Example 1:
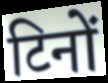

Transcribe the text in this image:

टिनों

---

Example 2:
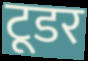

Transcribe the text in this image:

टूडर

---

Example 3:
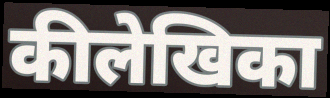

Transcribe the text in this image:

कीलेखिका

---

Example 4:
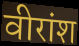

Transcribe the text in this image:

वीरांश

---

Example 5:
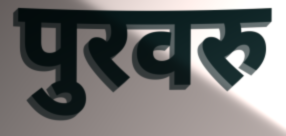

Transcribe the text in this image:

पुरवरु